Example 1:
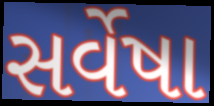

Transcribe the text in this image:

સર્વેષા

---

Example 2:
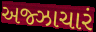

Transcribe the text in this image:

અજ્ઝાચારં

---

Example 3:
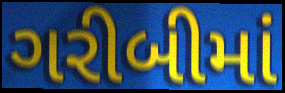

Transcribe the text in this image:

ગરીબીમાં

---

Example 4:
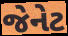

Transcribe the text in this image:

જેનેટ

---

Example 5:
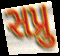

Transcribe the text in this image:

સપ્રુ